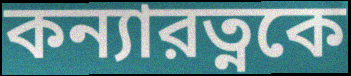
কন্যারত্নকে